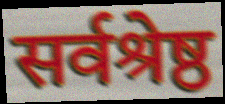
सर्वश्रेष्ठ